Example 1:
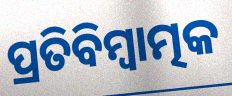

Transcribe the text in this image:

ପ୍ରତିବିମ୍ବାତ୍ମକ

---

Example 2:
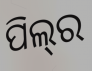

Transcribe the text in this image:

ପିଲ୍‌ର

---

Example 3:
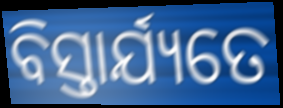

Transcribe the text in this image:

ବିସ୍ତାର୍ଯ୍ୟତେ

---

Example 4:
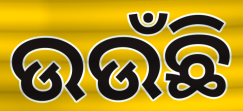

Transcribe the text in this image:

ଉଉଁଛି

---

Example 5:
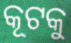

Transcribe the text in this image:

କୂଟକୁ